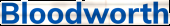
Bloodworth